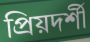
প্রিয়দর্শী